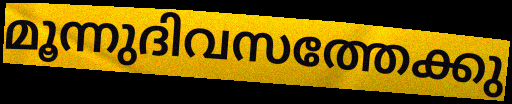
മൂന്നുദിവസത്തേക്കു